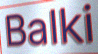
Balki